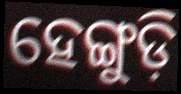
ହେଙ୍ଗୁଡ଼ି